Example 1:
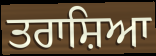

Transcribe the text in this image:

ਤਰਾਸ਼ਿਆ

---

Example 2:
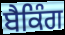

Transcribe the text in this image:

ਬੈਕਿੰਗ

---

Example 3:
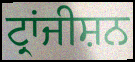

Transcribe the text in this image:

ਟ੍ਰਾਂਜੀਸ਼ਨ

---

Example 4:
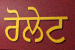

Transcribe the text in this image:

ਰੋਲੇਟ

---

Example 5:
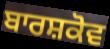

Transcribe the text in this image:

ਬਾਰਸ਼ਕੋਵ